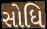
સોધિ